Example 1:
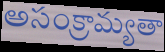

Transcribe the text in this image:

అసంక్రామ్యతా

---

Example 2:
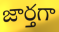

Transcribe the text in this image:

జార్తగా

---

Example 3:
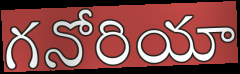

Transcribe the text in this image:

గనోరియా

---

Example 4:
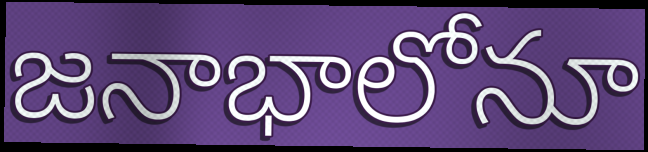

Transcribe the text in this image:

జనాభాలోనూ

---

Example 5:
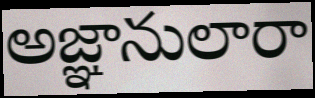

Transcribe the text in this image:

అజ్ఞానులారా